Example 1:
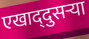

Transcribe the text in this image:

एखाद्‌दुसऱ्या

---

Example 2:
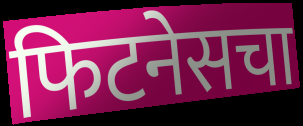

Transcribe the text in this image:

फिटनेसचा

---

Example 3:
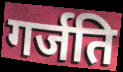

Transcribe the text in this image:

गर्जति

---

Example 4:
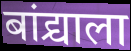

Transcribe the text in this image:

बांद्र्याला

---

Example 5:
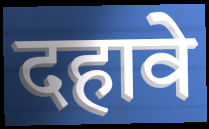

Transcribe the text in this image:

दहावे